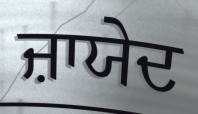
ਜ਼ਾਯੇਦ